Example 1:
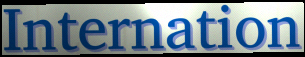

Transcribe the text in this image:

Internation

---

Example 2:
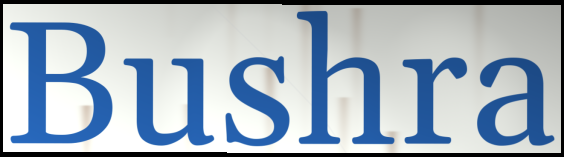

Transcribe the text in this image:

Bushra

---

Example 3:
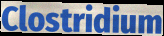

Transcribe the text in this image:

Clostridium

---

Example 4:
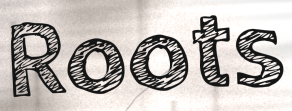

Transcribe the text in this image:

Roots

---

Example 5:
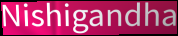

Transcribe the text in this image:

Nishigandha